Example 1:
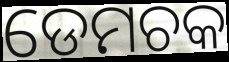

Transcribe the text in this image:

ଡେମଚକ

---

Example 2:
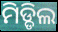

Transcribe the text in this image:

ମିଡ୍ଡିଲ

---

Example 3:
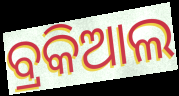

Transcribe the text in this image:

ବ୍ରକିଆଲ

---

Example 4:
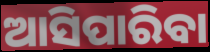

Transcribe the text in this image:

ଆସିପାରିବା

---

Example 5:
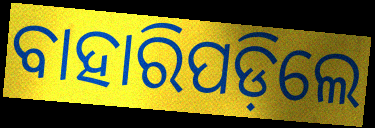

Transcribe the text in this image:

ବାହାରିପଡ଼ିଲେ